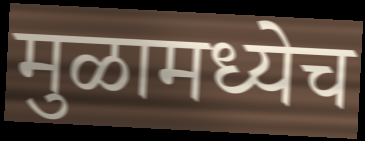
मुळामध्येच